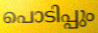
പൊടിപ്പും